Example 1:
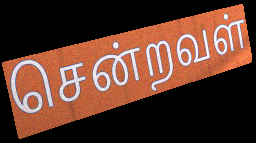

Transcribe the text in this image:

சென்றவள்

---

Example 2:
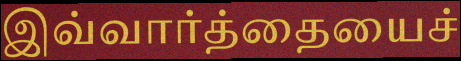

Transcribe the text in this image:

இவ்வார்த்தையைச்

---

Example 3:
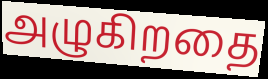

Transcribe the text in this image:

அழுகிறதை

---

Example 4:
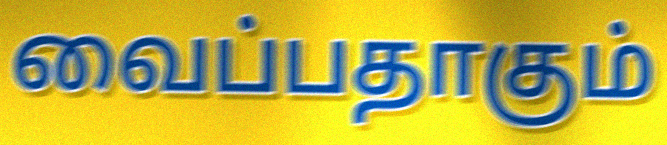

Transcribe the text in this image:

வைப்பதாகும்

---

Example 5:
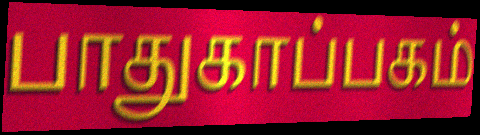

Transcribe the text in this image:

பாதுகாப்பகம்